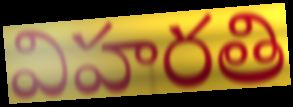
విహరతి